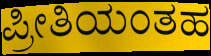
ಪ್ರೀತಿಯಂತಹ